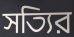
সত্যির